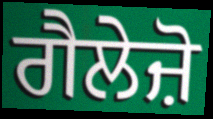
ਗੈਲੇਜ਼ੋ